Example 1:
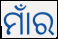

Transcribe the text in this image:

ମାଁର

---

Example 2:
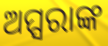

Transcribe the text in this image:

ଅପ୍ସରାଙ୍କ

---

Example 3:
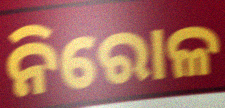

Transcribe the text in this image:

ନିରୋଳ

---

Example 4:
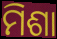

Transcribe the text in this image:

ମିଶା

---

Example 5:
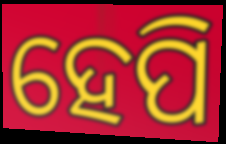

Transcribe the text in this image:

ହେପି